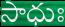
సాధుః